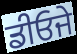
ਡੀਓਜੇ